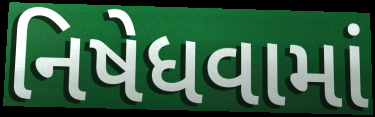
નિષેધવામાં